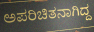
ಅಪರಿಚಿತನಾಗಿದ್ದ